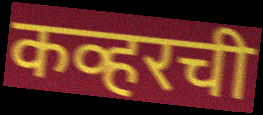
कव्हरची